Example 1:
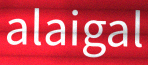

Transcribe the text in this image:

alaigal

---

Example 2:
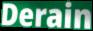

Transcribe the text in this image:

Derain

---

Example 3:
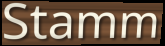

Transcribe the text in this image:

Stamm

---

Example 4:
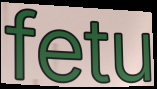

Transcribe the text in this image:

fetu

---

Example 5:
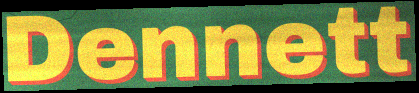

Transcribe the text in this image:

Dennett